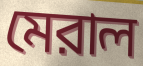
মেরাল